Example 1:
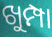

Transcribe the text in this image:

ଖୁମ୍ପା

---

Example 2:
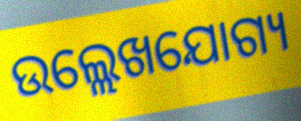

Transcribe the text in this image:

ଉଲ୍ଲେଖଯୋଗ୍ୟ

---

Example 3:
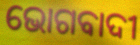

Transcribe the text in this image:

ଭୋଗବାଦୀ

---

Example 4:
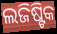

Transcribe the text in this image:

ଲଜିଷ୍ଟିକ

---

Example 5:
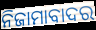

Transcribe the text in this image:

ନିଜାମାବାଦର